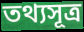
তথ্যসূত্র